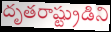
దృతరాష్ట్రుడిని